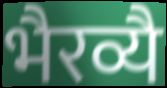
भैरव्यै